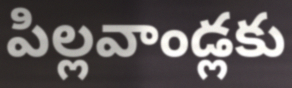
పిల్లవాండ్లకు